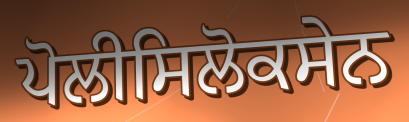
ਪੋਲੀਸਿਲੋਕਸੇਨ